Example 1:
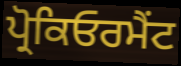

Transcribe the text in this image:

ਪ੍ਰੋਕਿਓਰਮੈਂਟ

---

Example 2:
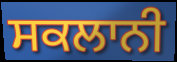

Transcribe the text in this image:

ਸਕਲਾਨੀ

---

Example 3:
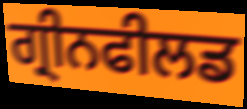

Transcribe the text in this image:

ਗ੍ਰੀਨਫੀਲਡ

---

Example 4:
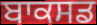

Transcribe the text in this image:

ਬਾਕਸਡ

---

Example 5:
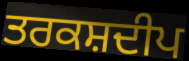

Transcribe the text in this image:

ਤਰਕਸ਼ਦੀਪ